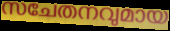
സചേതനവുമായ